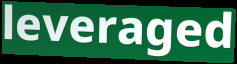
leveraged